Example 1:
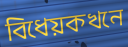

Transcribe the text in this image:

বিধেয়কখনে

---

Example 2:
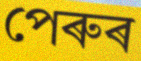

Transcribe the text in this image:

পেৰুৰ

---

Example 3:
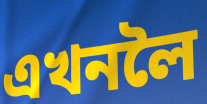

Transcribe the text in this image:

এখনলৈ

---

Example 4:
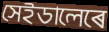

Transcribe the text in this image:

সেইডালেৰে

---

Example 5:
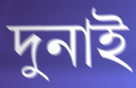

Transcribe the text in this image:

দুনাই